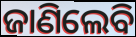
ଜାଣିଲେବି